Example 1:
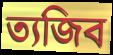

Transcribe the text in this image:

ত্যজিব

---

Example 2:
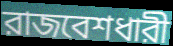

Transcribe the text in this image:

রাজবেশধারী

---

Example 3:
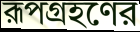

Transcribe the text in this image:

রূপগ্রহণের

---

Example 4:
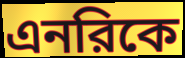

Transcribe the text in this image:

এনরিকে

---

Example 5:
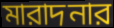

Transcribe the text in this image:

মারাদনার